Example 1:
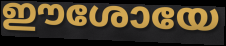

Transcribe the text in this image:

ഈശോയേ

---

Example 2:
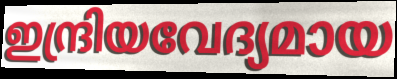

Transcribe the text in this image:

ഇന്ദ്രിയവേദ്യമായ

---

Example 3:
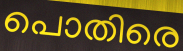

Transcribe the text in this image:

പൊതിരെ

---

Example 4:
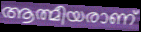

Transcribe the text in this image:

ആത്മീയരാണ്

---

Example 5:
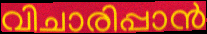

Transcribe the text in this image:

വിചാരിപ്പാൻ